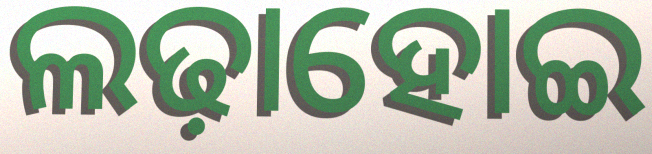
ଲଢ଼ାହୋଇ